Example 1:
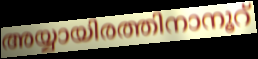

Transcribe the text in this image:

അയ്യായിരത്തിനാനൂറ്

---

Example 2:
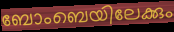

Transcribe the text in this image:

ബോംബെയിലേക്കും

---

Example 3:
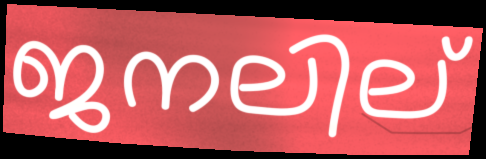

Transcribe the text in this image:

ജനലില്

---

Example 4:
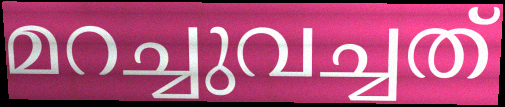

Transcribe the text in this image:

മറച്ചുവച്ചത്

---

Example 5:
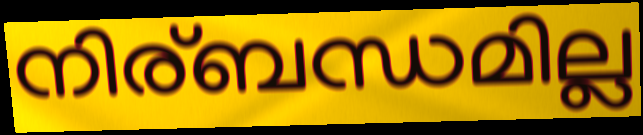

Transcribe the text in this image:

നിര്ബന്ധമില്ല